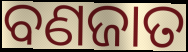
ବଣଜାତ